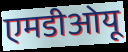
एमडीओयू